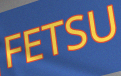
FETSU